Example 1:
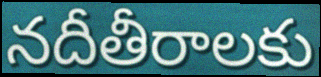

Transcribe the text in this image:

నదీతీరాలకు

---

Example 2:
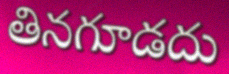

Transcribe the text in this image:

తినగూడదు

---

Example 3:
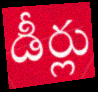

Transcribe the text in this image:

డీర్లు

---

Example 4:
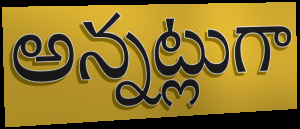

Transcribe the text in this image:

అన్నట్లుగా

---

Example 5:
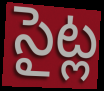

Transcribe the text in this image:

సైట్ల